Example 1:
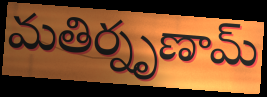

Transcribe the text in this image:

మతిర్నృణామ్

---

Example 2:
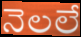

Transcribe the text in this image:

నెలలే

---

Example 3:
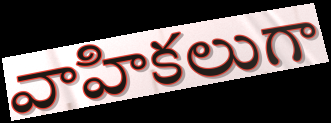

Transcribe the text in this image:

వాహికలుగా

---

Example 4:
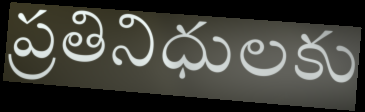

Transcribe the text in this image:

ప్రతినిధులకు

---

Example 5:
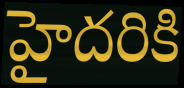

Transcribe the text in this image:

హైదరికి